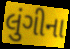
લુંગીના